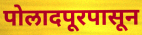
पोलादपूरपासून